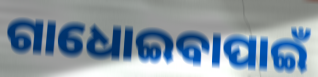
ଗାଧୋଇବାପାଇଁ